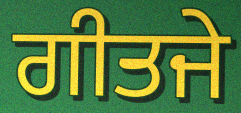
ਗੀਤਜੇ